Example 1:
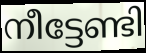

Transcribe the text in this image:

നീട്ടേണ്ടി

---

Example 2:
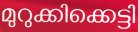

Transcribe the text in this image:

മുറുക്കിക്കെട്ടി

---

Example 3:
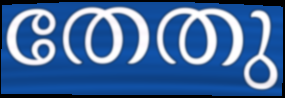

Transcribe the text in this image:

തേതു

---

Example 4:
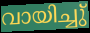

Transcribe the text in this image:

വായിച്ചു്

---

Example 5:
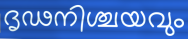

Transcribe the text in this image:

ദൃഢനിശ്ചയവും